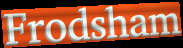
Frodsham